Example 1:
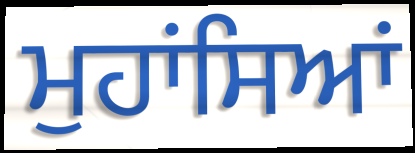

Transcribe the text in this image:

ਮੁਹਾਂਸਿਆਂ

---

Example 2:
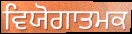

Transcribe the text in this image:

ਵਿਯੋਗਾਤਮਕ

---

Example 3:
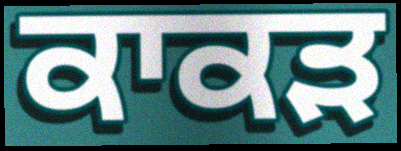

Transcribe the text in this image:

ਕਾਕੜ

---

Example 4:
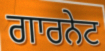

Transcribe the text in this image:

ਗਾਰਨੇਟ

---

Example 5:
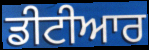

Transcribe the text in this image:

ਡੀਟੀਆਰ